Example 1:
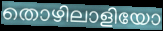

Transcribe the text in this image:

തൊഴിലാളിയോ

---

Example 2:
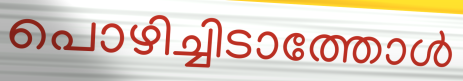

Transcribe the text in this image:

പൊഴിച്ചിടാത്തോൾ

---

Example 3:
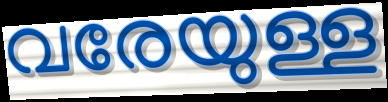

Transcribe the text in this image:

വരേയുള്ള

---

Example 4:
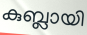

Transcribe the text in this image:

കുബ്ലായി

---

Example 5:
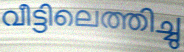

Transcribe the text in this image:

വീട്ടിലെത്തിച്ചു